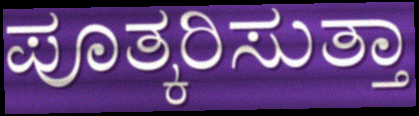
ಪೂತ್ಕರಿಸುತ್ತಾ